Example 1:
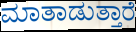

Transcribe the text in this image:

ಮಾತಾಡುತ್ತಾರೆ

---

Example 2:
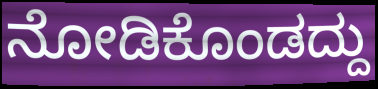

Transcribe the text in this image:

ನೋಡಿಕೊಂಡದ್ದು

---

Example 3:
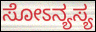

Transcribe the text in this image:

ಸೋಽನ್ಯಸ್ಯ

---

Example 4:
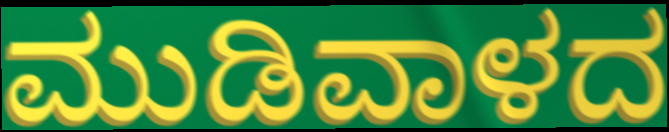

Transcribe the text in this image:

ಮುಡಿವಾಳದ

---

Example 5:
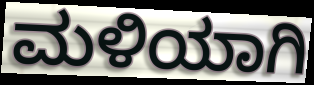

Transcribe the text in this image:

ಮಳಿಯಾಗಿ